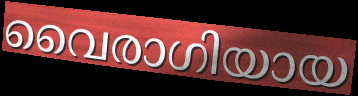
വൈരാഗിയായ